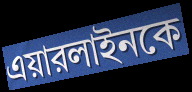
এয়ারলাইনকে